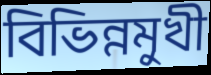
বিভিন্নমুখী